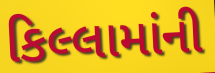
કિલ્લામાંની